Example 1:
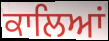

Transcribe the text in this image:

ਕਾਲਿਆਂ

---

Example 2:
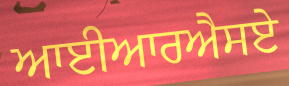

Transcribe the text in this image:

ਆਈਆਰਐਸਏ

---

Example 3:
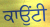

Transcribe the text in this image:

ਕਾਉਂਟੀ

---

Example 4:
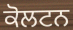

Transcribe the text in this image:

ਕੋਲਟਨ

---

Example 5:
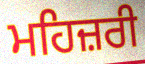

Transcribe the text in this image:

ਮਹਿਜ਼ਰੀ